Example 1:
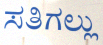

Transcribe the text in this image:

ಸತಿಗಲ್ಲು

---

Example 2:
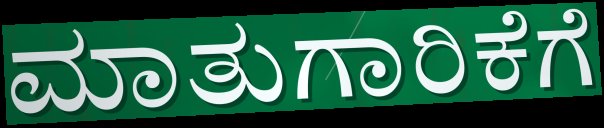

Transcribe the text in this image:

ಮಾತುಗಾರಿಕೆಗೆ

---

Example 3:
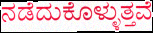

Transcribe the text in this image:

ನಡೆದುಕೊಳ್ಳುತ್ತವೆ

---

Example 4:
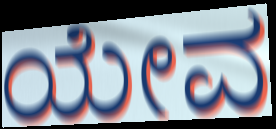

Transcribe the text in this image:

ಯೇವ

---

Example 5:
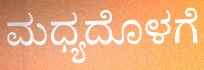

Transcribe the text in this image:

ಮಧ್ಯದೊಳಗೆ